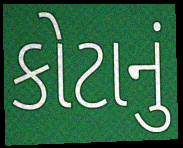
કોટાનું